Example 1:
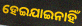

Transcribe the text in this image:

ହେଇଯାଇନାହିଁ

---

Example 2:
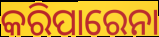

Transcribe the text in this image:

କରିପାରେନା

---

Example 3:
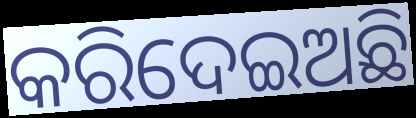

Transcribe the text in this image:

କରିଦେଇଅଛି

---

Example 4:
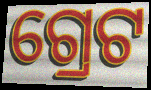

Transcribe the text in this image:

ଗ୍ରେଟ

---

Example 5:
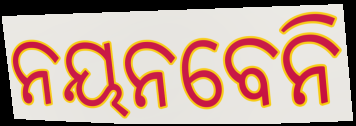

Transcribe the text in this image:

ନୟନବେନି